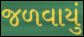
જળવાયું